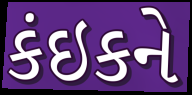
કંઇકને